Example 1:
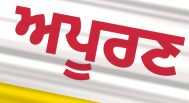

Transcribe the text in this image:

ਅਪੂਰਣ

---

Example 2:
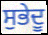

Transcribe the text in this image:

ਸੁਭੇਦੂ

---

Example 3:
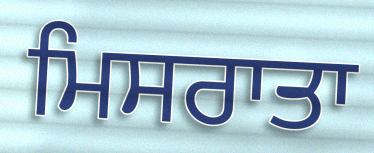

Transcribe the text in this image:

ਮਿਸਰਾਤਾ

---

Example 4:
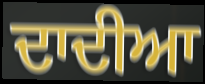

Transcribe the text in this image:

ਦਾਦੀਆ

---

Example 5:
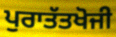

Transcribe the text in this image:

ਪੁਰਾਤੱਤਖੋਜੀ